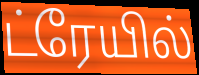
ட்ரேயில்